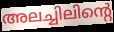
അലച്ചിലിന്റെ